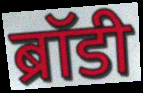
ब्रॉडी